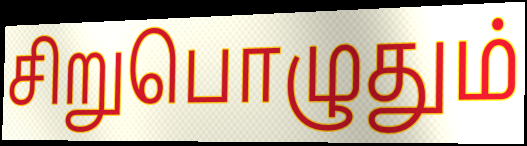
சிறுபொழுதும்